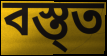
বস্ত্ত